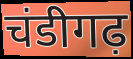
चंडीगढ़